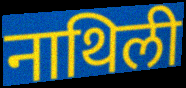
नाथिली